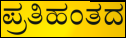
ಪ್ರತಿಹಂತದ